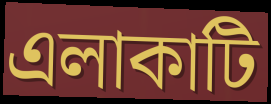
এলাকাটি